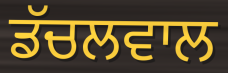
ਡੱਚਲਵਾਲ